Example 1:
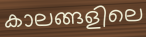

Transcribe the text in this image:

കാലങ്ങളിലെ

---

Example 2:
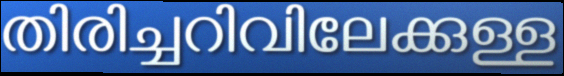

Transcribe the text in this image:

തിരിച്ചറിവിലേക്കുള്ള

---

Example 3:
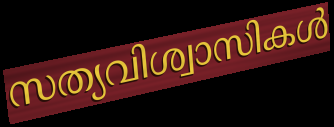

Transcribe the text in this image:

സത്യവിശ്വാസികൾ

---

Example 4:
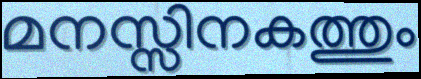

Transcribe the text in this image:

മനസ്സിനകത്തും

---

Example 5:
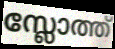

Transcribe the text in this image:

സ്ലോത്ത്